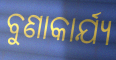
ବୁଣାକାର୍ଯ୍ୟ